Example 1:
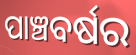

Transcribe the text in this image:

ପାଞ୍ଚବର୍ଷର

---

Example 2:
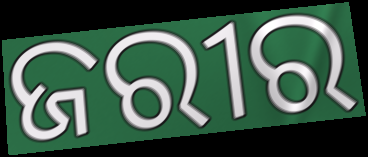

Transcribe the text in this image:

ଜରୀର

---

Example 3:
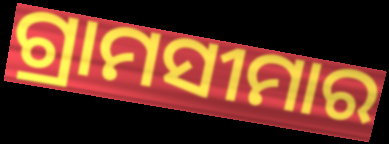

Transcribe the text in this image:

ଗ୍ରାମସୀମାର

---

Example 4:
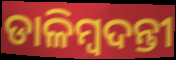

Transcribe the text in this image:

ଡାଳିମ୍ବଦନ୍ତୀ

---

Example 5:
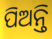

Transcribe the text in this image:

ପିଅନ୍ତି